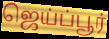
ஜெய்ப்பூர்